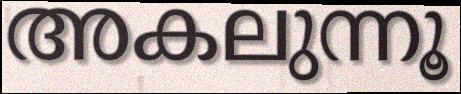
അകലുന്നൂ